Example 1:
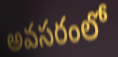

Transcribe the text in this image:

అవసరంలో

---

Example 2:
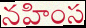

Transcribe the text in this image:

నహింస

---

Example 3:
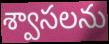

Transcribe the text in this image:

శ్వాసలను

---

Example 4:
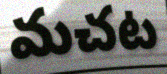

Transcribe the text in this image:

మచట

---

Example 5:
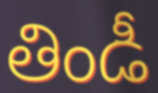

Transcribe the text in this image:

తిండీ